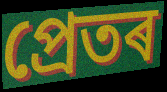
প্ৰেতৰ